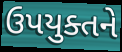
ઉપયુક્તને